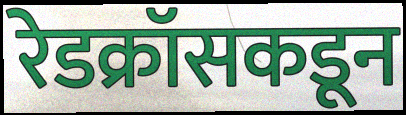
रेडक्रॉसकडून